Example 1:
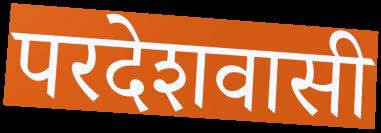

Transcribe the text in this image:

परदेशवासी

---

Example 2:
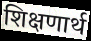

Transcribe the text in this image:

शिक्षणार्थ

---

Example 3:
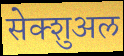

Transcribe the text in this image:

सेक्शुअल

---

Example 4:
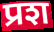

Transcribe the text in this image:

प्रश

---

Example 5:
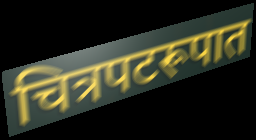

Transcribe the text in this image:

चित्रपटरूपात